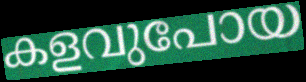
കളവുപോയ